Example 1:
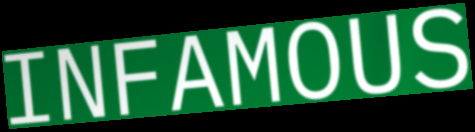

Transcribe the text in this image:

INFAMOUS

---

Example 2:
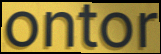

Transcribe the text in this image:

ontor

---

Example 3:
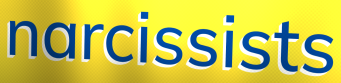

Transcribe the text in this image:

narcissists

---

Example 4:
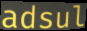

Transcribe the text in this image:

adsul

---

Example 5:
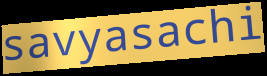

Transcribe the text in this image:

savyasachi